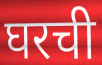
घरची